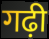
गढ़ी